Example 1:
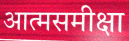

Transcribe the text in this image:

आत्मसमीक्षा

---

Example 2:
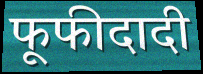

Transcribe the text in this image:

फूफीदादी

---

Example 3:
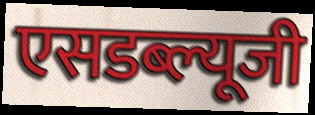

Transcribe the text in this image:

एसडब्ल्यूजी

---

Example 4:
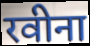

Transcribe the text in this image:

रवीना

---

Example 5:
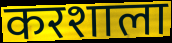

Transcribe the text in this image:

करशाला